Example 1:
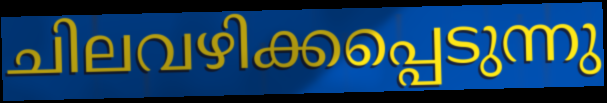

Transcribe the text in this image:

ചിലവഴിക്കപ്പെടുന്നു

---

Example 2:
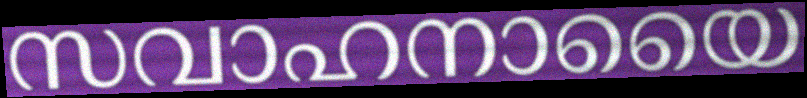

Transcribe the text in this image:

സവാഹനായൈ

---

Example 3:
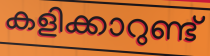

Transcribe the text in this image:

കളിക്കാറുണ്ട്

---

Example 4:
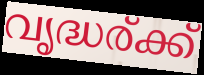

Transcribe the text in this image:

വൃദ്ധര്ക്ക്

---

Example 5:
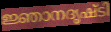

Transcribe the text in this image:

ജ്ഞാനദൃഷ്ടി